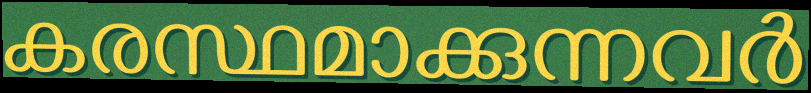
കരസ്ഥമാക്കുന്നവർ